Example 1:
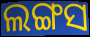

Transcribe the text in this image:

ଲଙ୍ଗସ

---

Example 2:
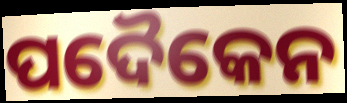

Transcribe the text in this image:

ପଦୈକେନ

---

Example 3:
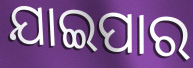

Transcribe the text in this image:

ଯାଇପାର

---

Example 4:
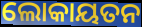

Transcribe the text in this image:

ଲୋକାୟତନ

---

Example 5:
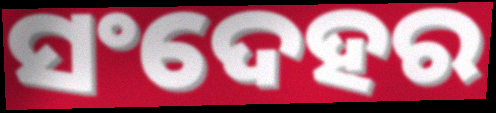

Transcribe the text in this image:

ସଂଦେହର